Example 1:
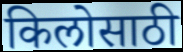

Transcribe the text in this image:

किलोसाठी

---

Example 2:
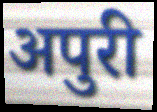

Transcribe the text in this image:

अपुरी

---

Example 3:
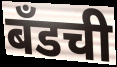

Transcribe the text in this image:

बँडची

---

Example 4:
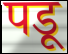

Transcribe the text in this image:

पडू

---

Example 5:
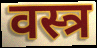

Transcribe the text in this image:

वस्त्र